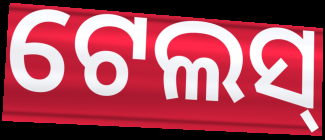
ଟେଲସ୍